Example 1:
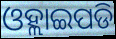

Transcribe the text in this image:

ଓହ୍ଲାଇପଡି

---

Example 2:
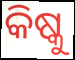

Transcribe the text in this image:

କିଷ୍କୁ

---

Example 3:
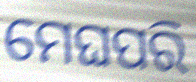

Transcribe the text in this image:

ମେଘପରି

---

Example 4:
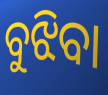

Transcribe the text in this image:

ବୁଝିବା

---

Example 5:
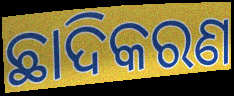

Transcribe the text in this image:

ଛାଦିକରଣ